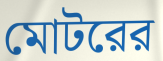
মোটরের